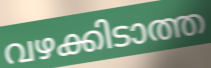
വഴക്കിടാത്ത